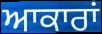
ਆਕਾਰਾਂ